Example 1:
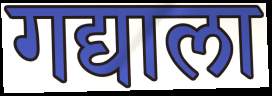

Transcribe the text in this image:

गद्याला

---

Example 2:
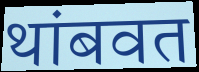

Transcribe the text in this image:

थांबवत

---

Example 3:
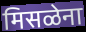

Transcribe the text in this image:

मिसळेना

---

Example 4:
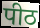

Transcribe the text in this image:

पीठ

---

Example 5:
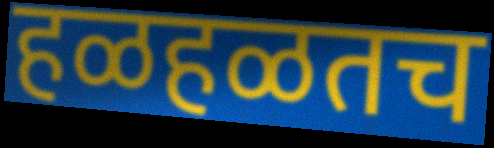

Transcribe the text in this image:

हळहळतच